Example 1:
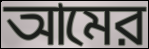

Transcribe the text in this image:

আমের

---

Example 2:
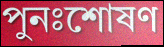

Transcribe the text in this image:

পুনঃশোষণ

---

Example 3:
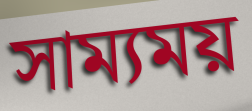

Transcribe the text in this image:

সাম্যময়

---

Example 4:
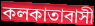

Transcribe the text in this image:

কলকাতাবাসী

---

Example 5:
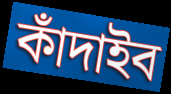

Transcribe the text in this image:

কাঁদাইব